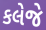
કલેજે